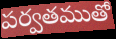
పర్వతముతో